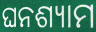
ଘନଶ୍ୟାମ